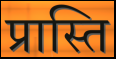
प्रास्ति